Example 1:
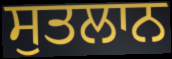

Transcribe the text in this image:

ਸੁਤਲਾਨ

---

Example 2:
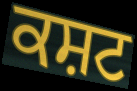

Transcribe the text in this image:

ਕਸ਼ਟ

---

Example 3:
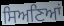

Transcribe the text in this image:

ਸਿਅਣਿਆਂ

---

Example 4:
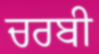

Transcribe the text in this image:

ਚਰਬੀ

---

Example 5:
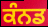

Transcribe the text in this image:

ਕੰਨਡ